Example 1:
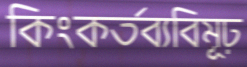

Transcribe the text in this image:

কিংকর্তব্যবিমূঢ়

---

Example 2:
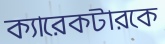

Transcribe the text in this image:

ক্যারেকটারকে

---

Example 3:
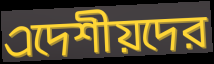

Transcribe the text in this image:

এদেশীয়দের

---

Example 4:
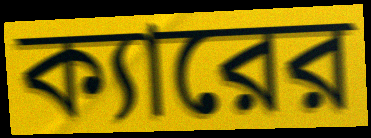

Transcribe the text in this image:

ক্যারের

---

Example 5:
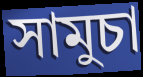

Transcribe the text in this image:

সামুচা